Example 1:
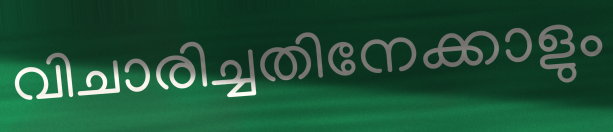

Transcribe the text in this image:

വിചാരിച്ചതിനേക്കാളും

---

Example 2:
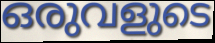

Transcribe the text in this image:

ഒരുവളുടെ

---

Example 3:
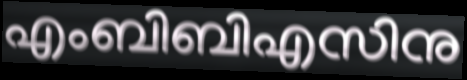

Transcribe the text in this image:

എംബിബിഎസിനു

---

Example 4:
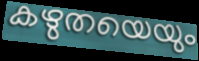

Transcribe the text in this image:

കഴുതയെയും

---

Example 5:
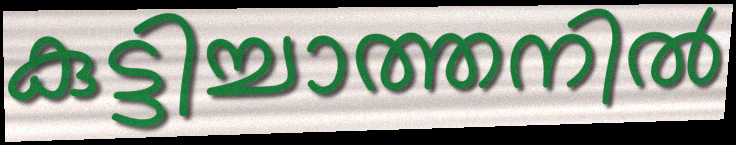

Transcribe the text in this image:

കുട്ടിച്ചാത്തനിൽ